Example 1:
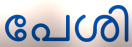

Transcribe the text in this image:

പേശി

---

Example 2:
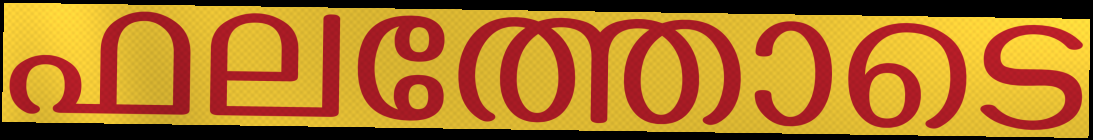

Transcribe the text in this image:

ഫലത്തോടെ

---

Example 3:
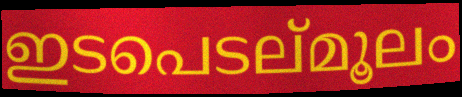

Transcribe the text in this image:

ഇടപെടല്മൂലം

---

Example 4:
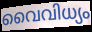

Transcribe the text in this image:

വൈവിധ്യം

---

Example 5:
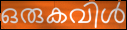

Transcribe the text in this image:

ഒരുകവിൾ